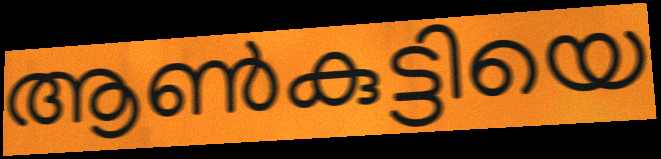
ആൺകുട്ടിയെ